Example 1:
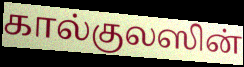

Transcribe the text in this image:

கால்குலஸின்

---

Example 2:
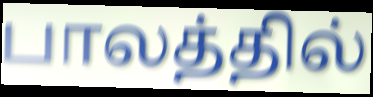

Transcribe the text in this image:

பாலத்தில்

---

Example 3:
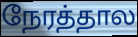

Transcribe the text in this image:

நேரத்தால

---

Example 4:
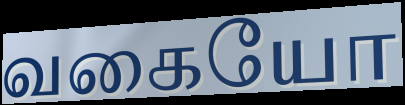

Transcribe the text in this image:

வகையோ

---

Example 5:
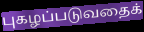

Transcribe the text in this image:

புகழப்படுவதைக்